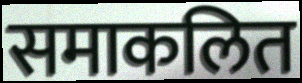
समाकलित